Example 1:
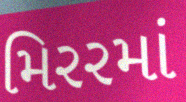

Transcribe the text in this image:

મિરરમાં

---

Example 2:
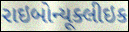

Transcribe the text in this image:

રાઇબોન્યૂક્લીઇક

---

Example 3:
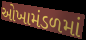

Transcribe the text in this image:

ઓખામંડળમાં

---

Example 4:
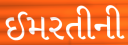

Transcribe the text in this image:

ઈમરતીની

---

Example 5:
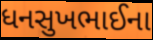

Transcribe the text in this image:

ધનસુખભાઈના